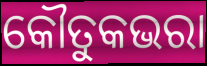
କୌତୁକଭରା